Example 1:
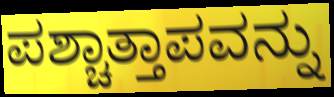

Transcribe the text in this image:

ಪಶ್ಚಾತ್ತಾಪವನ್ನು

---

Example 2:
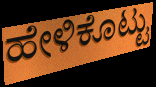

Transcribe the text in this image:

ಹೇಳಿಕೊಟ್ಟು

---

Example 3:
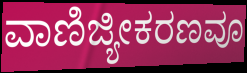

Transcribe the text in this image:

ವಾಣಿಜ್ಯೀಕರಣವೂ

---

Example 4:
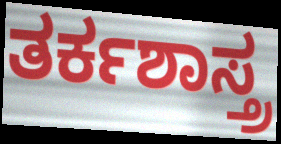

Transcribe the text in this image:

ತರ್ಕಶಾಸ್ತ್ರ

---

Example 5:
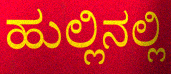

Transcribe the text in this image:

ಹುಲ್ಲಿನಲ್ಲಿ